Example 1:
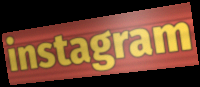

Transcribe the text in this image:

instagram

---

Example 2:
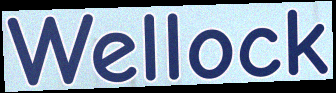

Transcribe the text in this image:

Wellock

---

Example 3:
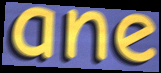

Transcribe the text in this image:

ane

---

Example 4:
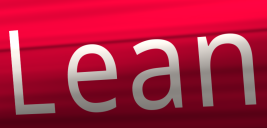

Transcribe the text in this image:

Lean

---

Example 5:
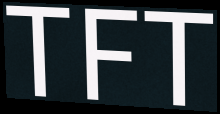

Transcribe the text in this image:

TFT